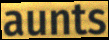
aunts